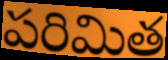
పరిమిత